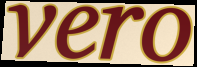
vero